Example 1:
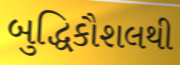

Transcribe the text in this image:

બુદ્ધિકૌશલથી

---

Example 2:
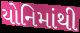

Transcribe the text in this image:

યોનિમાંથી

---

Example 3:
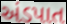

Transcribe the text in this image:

અંડપાત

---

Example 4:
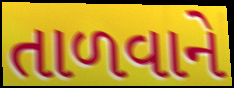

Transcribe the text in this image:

તાળવાને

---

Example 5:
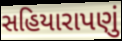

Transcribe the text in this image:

સહિયારાપણું